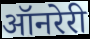
ऑनरेरी